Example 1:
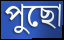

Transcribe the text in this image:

পুছো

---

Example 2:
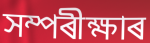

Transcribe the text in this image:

সম্পৰীক্ষাৰ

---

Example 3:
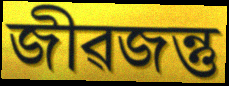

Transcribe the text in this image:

জীৱজন্তু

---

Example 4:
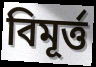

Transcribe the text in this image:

বিমূৰ্ত্ত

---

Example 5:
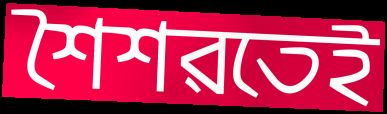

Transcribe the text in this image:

শৈশৱতেই